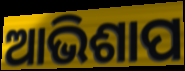
ଆଭିଶାପ